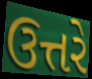
ઉત્તરે